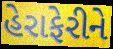
હેરાફેરીને